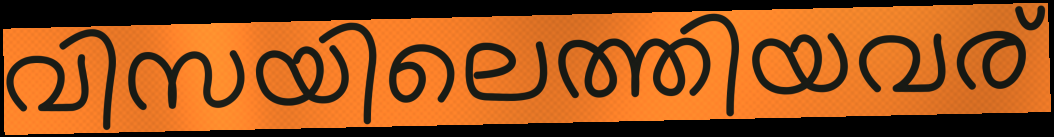
വിസയിലെത്തിയവര്